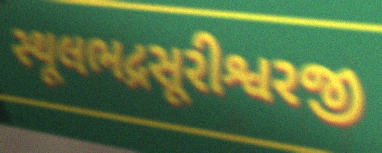
સ્થૂલભદ્રસૂરીશ્વરજી